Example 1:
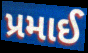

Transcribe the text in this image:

પ્રમાઈ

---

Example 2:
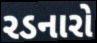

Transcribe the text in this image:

રડનારો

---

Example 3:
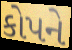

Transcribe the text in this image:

કોપને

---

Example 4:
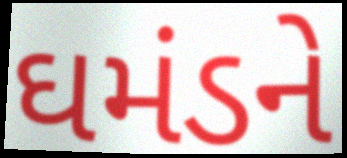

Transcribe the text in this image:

ઘમંડને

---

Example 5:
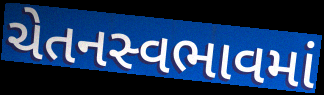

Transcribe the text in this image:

ચેતનસ્વભાવમાં